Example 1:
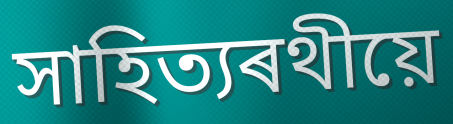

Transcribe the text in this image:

সাহিত্যৰথীয়ে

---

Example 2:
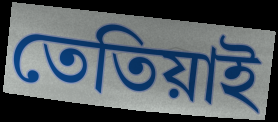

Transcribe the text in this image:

তেতিয়াই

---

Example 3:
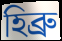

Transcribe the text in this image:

হিব্ৰু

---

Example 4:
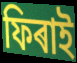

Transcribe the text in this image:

ফিৰাই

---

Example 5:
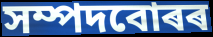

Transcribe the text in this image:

সম্পদবোৰৰ